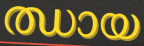
ഝായ